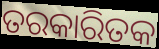
ତରକାରିତକ